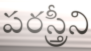
పరస్త్రీని